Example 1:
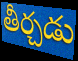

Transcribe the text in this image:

తీర్చడు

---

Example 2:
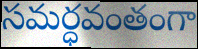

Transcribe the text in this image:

సమర్ధవంతంగా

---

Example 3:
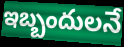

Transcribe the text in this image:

ఇబ్బందులనే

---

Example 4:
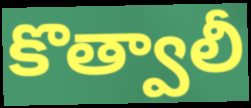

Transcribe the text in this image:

కొత్వాలీ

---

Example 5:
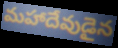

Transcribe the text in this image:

మహాదేవుడైన